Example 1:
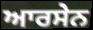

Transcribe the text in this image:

ਆਰਸੇਨ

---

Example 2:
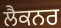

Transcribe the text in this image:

ਲੈਕਨਰ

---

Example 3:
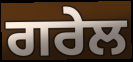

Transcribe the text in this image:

ਗਰੇਲ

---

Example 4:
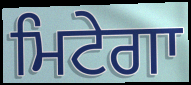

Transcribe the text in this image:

ਮਿਟੇਗਾ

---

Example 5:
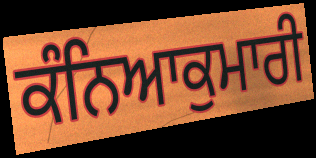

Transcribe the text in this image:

ਕੰਨਿਆਕੁਮਾਰੀ